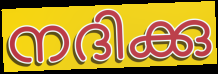
നദിക്കു